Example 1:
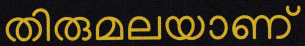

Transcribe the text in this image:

തിരുമലയാണ്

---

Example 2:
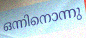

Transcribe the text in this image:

ഒന്നിനൊന്നു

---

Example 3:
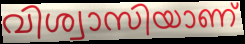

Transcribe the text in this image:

വിശ്വാസിയാണ്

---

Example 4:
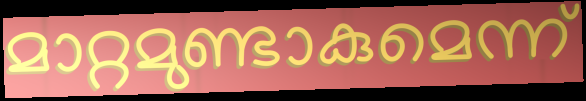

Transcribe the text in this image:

മാറ്റമുണ്ടാകുമെന്ന്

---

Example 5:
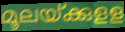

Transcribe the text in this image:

മൂലയ്‌ക്കുളള